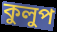
কুলুপ